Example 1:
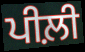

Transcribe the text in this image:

ਪੀਲ਼ੀ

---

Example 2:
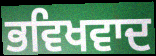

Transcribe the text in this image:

ਭਵਿਖਵਾਦ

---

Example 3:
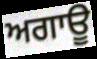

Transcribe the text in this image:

ਅਗਾਊ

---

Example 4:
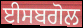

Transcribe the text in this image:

ਈਸਬਗੋਲ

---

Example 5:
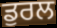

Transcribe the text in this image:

ਡੁਰਲ